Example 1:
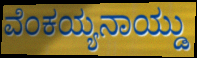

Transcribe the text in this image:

ವೆಂಕಯ್ಯನಾಯ್ಡು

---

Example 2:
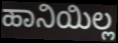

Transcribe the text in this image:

ಹಾನಿಯಿಲ್ಲ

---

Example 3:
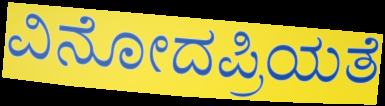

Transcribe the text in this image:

ವಿನೋದಪ್ರಿಯತೆ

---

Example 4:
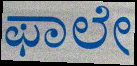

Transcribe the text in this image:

ಫಾಲೇ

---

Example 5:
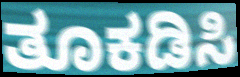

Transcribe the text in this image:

ತೂಕಡಿಸಿ